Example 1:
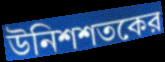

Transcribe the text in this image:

উনিশশতকের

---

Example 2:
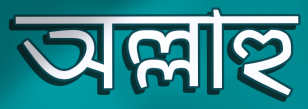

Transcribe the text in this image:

অল্লাহু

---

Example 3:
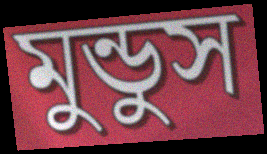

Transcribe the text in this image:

মুন্ডুস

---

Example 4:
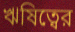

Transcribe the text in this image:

ঋষিত্বের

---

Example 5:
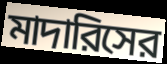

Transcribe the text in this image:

মাদারিসের